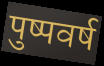
पुष्पवर्ष